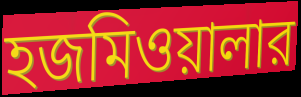
হজমিওয়ালার